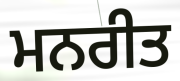
ਮਨਰੀਤ